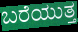
ಬರೆಯುತ್ತ